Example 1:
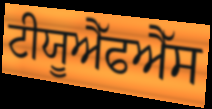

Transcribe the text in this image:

ਟੀਯੂਐੱਫਐੱਸ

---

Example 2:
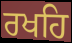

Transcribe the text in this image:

ਰਖਹਿ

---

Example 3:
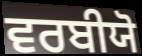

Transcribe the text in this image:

ਵਰਬੀਯੋ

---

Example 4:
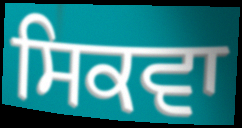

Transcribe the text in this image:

ਸਿਕਵਾ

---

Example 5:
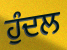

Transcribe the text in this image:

ਹੁੰਦਲ